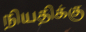
நியதிக்கு